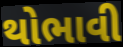
થોભાવી